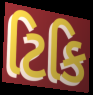
ટિકિ